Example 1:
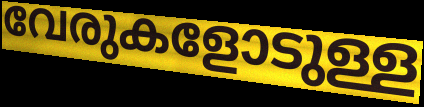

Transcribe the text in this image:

വേരുകളോടുള്ള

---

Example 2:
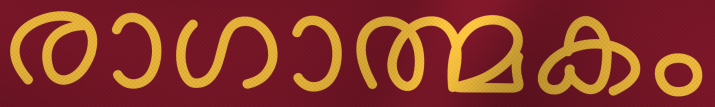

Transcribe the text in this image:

രാഗാത്മകം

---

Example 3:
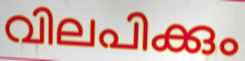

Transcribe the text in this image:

വിലപിക്കും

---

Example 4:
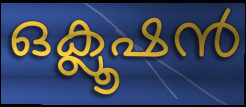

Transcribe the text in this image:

ഒക്ലൂഷൻ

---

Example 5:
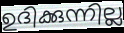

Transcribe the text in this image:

ഉദിക്കുന്നില്ല